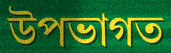
উপভাগত